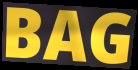
BAG